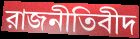
রাজনীতিবীদ